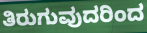
ತಿರುಗುವುದರಿಂದ